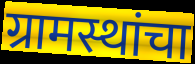
ग्रामस्थांचा